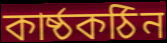
কাষ্ঠকঠিন